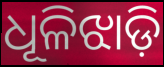
ଧୂଳିଝାଡ଼ି